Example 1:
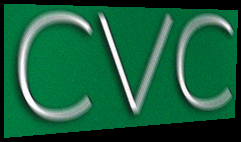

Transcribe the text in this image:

CVC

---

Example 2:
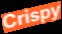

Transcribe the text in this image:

Crispy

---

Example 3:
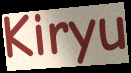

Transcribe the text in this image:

Kiryu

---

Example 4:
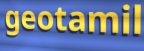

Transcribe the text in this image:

geotamil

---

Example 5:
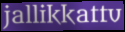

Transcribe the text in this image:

jallikkattu